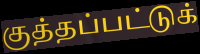
குத்தப்பட்டுக்